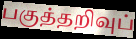
பகுத்தறிவுப்